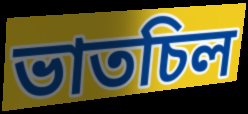
ভাতচিল